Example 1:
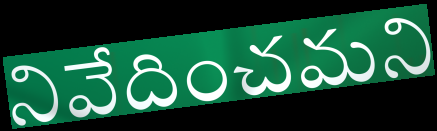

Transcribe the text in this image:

నివేదించమని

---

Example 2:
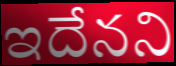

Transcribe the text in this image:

ఇదేనని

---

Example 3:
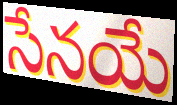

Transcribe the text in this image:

సేనయే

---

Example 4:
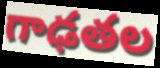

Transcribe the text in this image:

గాఢతల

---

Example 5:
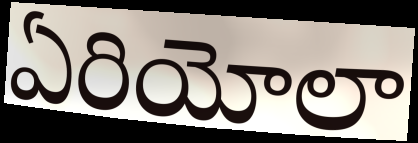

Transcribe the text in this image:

ఏరియోలా